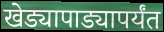
खेड्यापाड्यापर्यंत